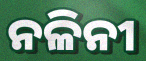
ନଳିନୀ